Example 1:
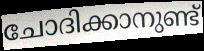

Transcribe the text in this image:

ചോദിക്കാനുണ്ട്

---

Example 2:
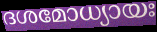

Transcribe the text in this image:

ദശമോധ്യായഃ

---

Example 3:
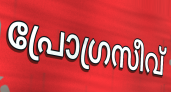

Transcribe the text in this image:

പ്രോഗ്രസീവ്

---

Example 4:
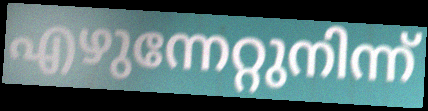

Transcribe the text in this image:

എഴുന്നേറ്റുനിന്ന്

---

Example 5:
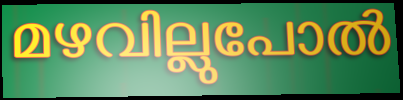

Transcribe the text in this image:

മഴവില്ലുപോൽ